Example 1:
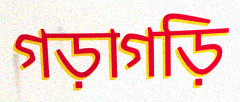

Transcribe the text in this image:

গড়াগড়ি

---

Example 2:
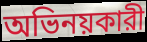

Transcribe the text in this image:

অভিনয়কারী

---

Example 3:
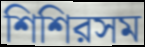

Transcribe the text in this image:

শিশিরসম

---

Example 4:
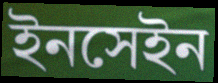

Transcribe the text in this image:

ইনসেইন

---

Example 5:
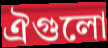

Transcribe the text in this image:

ঐগুলো